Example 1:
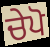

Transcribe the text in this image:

ਚੇਪੋ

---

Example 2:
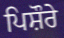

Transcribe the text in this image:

ਪਿਸ਼ੌਰੇ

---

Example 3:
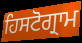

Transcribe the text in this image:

ਹਿਸਟੋਗ੍ਰਾਮ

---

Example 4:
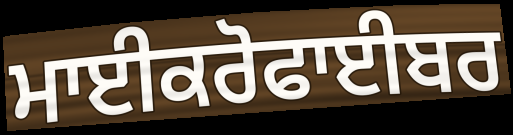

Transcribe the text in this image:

ਮਾਈਕਰੋਫਾਈਬਰ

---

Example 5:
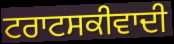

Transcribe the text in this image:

ਟਰਾਟਸਕੀਵਾਦੀ